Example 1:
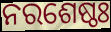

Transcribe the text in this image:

ନରଶେଷ୍ଠଃ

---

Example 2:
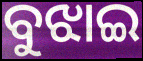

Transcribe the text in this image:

ବୁଝାଇ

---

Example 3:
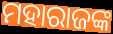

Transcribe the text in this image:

ମହାରାଜଙ୍କ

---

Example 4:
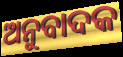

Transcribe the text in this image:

ଅନୁବାଦକ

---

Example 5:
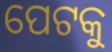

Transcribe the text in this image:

ପେଟକୁ